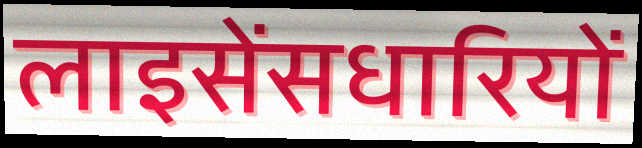
लाइसेंसधारियों